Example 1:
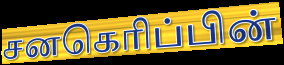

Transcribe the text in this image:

சனகெரிப்பின்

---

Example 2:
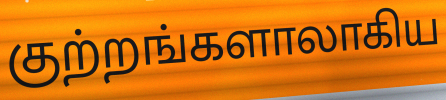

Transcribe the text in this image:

குற்றங்களாலாகிய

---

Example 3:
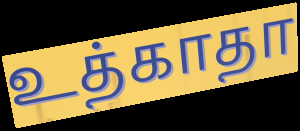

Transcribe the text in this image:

உத்காதா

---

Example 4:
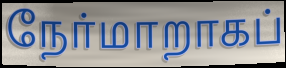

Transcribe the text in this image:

நேர்மாறாகப்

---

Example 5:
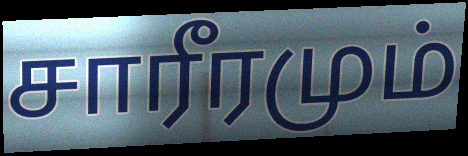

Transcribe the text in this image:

சாரீரமும்